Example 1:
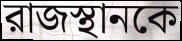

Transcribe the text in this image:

রাজস্থানকে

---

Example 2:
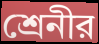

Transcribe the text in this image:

শ্রেনীর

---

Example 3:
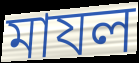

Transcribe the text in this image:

মাযল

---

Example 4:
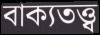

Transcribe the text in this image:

বাক্যতত্ত্ব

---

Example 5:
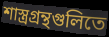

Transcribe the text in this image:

শাস্ত্রগ্রন্থগুলিতে